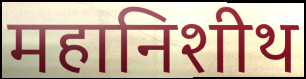
महानिशीथ